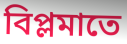
বিপ্লমাতে